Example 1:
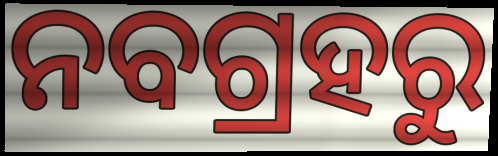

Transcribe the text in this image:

ନବଗ୍ରହରୁ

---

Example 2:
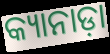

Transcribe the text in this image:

କ୍ୟାନାଡ଼ା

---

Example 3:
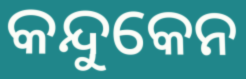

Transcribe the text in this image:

କନ୍ଦୁକେନ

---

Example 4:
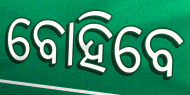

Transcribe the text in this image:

ବୋହିବେ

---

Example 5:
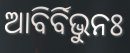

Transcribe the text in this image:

ଆବିର୍ବିଭୁନଃ